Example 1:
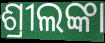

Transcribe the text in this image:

ଶ୍ରୀଲଙ୍କା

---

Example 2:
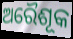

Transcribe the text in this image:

ଅରୈଶୂକ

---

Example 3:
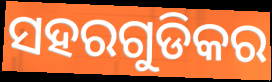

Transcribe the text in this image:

ସହରଗୁଡିକର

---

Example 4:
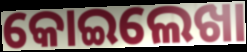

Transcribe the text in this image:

କୋଇଲେଖା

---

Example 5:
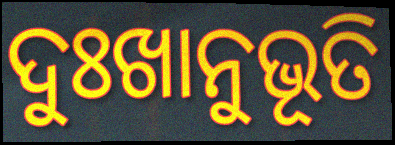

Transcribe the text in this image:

ଦୁଃଖାନୁଭୂତି